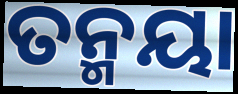
ତନ୍ମୟା